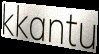
kkantu